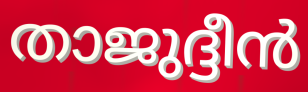
താജുദ്ദീൻ